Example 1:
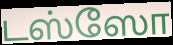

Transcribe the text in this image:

டஸ்ஸோ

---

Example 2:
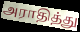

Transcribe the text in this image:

அராதித்து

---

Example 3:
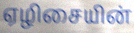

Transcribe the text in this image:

ஏழிசையின்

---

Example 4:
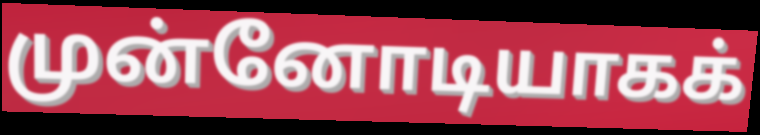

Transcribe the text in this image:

முன்னோடியாகக்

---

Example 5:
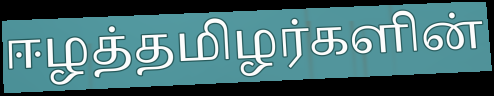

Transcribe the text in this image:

ஈழத்தமிழர்களின்